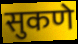
सुकणे